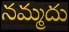
నమ్మదు